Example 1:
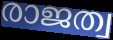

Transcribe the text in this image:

രാജത്വ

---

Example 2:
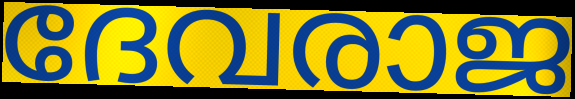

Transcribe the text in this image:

ദേവരാജ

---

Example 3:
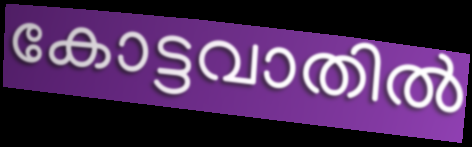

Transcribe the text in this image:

കോട്ടവാതിൽ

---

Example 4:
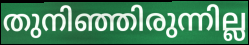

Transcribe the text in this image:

തുനിഞ്ഞിരുന്നില്ല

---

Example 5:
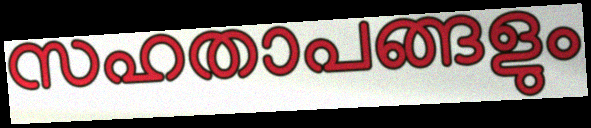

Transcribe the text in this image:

സഹതാപങ്ങളും